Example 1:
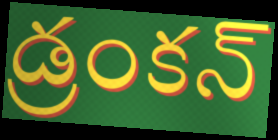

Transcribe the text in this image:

డ్రంకన్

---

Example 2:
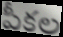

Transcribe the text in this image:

పీకల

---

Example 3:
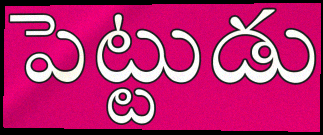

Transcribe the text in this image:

పెట్టుడు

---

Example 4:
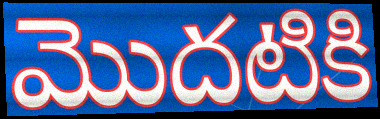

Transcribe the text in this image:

మొదటికి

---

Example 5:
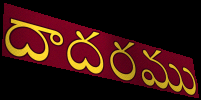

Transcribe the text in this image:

దాదరము